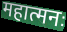
महात्मनः